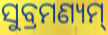
ସୁବ୍ରମଣ୍ୟମ୍